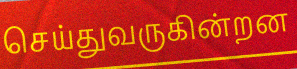
செய்துவருகின்றன